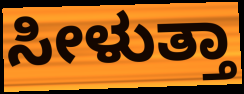
ಸೀಳುತ್ತಾ